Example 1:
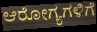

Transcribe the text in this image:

ಆರೋಗ್ಯಗಳಿಗೆ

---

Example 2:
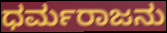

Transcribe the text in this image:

ಧರ್ಮರಾಜನು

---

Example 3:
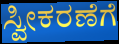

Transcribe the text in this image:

ಸ್ವೀಕರಣೆಗೆ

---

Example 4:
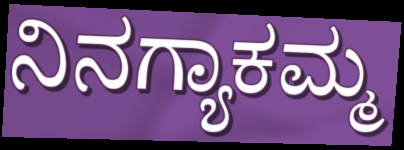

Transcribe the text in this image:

ನಿನಗ್ಯಾಕಮ್ಮ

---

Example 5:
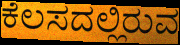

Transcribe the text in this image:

ಕೆಲಸದಲ್ಲಿರುವ